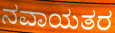
ನವಾಯತರ